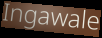
Ingawale